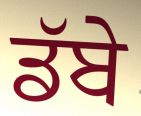
ਡੱਬੇ